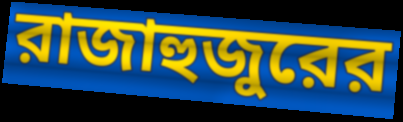
রাজাহুজুরের